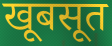
खूबसूत